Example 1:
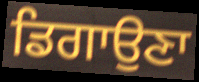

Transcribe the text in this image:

ਡਿਗਾਉਣਾ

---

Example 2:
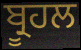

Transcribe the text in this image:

ਬ੍ਰੂਹਲ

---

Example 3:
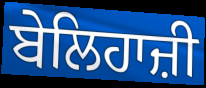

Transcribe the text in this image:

ਬੇਲਿਹਾਜ਼ੀ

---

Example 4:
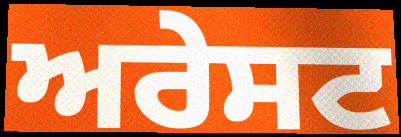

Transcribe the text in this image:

ਅਰੇਸਟ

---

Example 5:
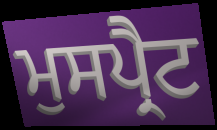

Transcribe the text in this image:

ਮੁਸਪ੍ਰੈਟ